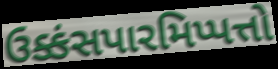
ઉક્કંસપારમિપ્પત્તો